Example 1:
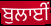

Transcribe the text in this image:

ਬੁਲਾਈਂ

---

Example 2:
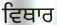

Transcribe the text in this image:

ਵਿਥਾਰ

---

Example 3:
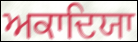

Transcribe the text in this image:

ਅਕਾਦਿਯਾ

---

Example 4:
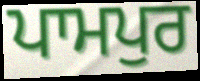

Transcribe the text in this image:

ਪਾਮਪੁਰ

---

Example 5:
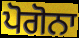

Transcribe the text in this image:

ਪੋਗੋਨਾ